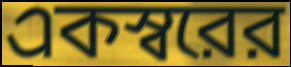
একস্বরের